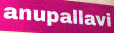
anupallavi